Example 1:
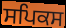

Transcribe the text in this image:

ਸਪਿਕਸ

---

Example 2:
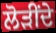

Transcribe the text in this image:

ਲੋੜੀਂਦੇ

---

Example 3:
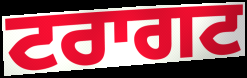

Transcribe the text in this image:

ਟਰਾਗਟ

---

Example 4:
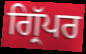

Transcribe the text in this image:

ਗ੍ਰਿੱਪਰ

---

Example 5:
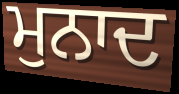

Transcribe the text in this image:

ਮੁਨਾਦ